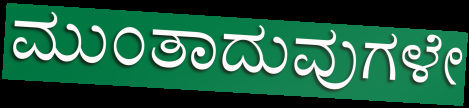
ಮುಂತಾದುವುಗಳೇ